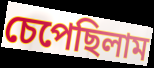
চেপেছিলাম